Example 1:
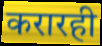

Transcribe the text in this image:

करारही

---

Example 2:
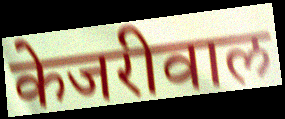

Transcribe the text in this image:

केजरीवाल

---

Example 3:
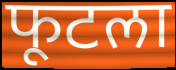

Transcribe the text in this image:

फूटला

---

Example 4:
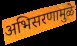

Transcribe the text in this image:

अभिसरणामुळे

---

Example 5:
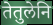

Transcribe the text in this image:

तेतुलेनि